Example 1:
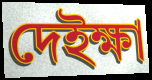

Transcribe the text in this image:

দেইক্ষা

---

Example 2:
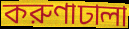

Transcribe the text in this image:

করুণাঢালা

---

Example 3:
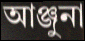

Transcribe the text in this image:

আঞ্জুনা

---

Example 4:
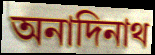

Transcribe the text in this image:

অনাদিনাথ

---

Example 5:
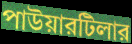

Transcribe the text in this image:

পাউয়ারটিলার